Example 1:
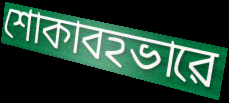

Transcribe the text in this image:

শোকাবহভাৱে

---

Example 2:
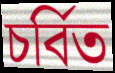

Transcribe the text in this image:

চৰ্বিত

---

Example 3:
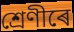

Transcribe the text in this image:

শ্ৰেণীৰে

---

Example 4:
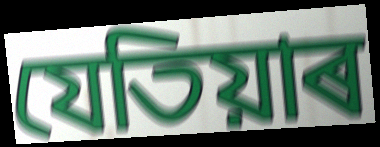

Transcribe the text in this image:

যেতিয়াৰ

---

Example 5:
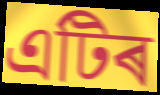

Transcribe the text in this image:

এটিৰ